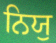
ਨਿਯੁ